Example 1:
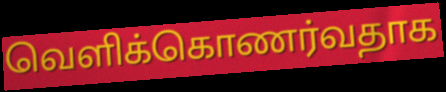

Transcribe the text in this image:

வெளிக்கொணர்வதாக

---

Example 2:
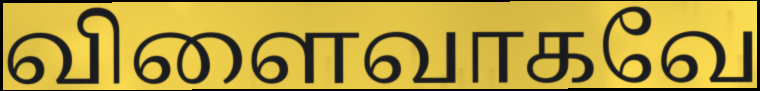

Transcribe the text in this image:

விளைவாகவே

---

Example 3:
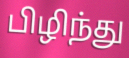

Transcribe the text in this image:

பிழிந்து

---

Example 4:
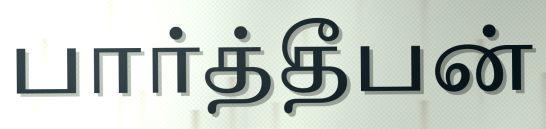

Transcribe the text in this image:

பார்த்தீபன்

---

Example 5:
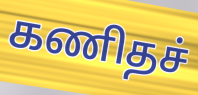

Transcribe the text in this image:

கணிதச்